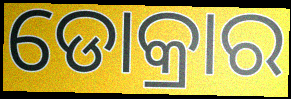
ଡୋକ୍ରାର